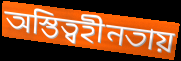
অস্তিত্বহীনতায়